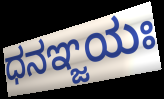
ಧನಞ್ಜಯಃ